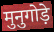
मुनुगोड़े